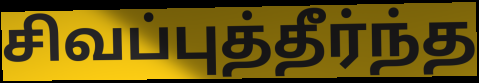
சிவப்புத்தீர்ந்த